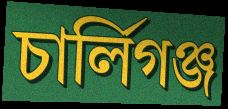
চার্লিগঞ্জ